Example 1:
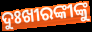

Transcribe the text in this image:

ଦୁଃଖୀରଙ୍କୀଙ୍କୁ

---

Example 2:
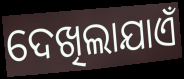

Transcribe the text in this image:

ଦେଖିଲାଯାଏଁ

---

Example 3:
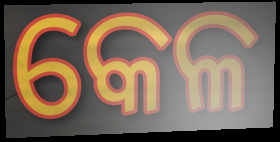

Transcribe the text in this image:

କେଳ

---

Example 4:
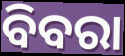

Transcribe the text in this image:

ବିବରା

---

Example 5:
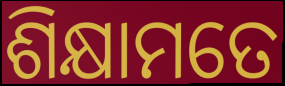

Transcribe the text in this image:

ଶିକ୍ଷାମତେ